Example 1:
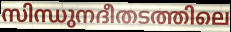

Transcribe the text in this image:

സിന്ധുനദീതടത്തിലെ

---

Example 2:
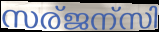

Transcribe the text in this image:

സര്ജന്സി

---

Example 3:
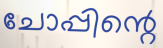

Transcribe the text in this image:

ചോപ്പിന്റെ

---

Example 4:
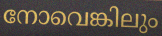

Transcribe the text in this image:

നോവെങ്കിലും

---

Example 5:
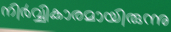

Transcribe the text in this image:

നിർവ്വികാരമായിരുന്നു